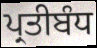
ਪ੍ਰਤੀਬੰਧ